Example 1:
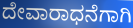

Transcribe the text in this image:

ದೇವಾರಾಧನೆಗಾಗಿ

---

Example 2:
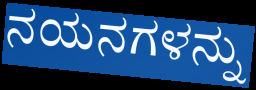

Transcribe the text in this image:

ನಯನಗಳನ್ನು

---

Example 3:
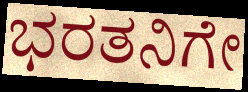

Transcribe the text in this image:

ಭರತನಿಗೇ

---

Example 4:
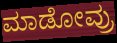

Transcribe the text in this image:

ಮಾಡೋವ್ರು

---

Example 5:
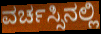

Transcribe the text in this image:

ವರ್ಚಸ್ಸಿನಲ್ಲಿ